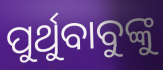
ପୁର୍ଥୁବାବୁଙ୍କୁ